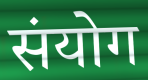
संयोग